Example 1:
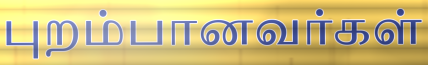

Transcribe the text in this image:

புறம்பானவர்கள்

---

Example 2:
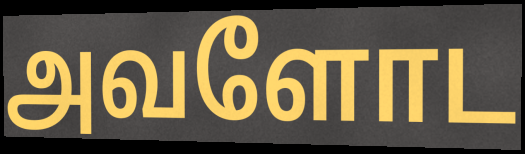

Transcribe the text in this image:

அவளோட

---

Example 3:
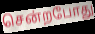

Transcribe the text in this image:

சென்றபோது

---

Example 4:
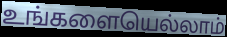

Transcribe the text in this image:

உங்களையெல்லாம்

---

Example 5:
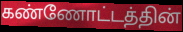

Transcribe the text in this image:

கண்ணோட்டத்தின்